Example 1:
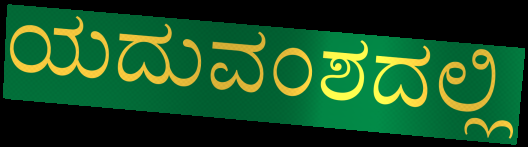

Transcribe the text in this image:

ಯದುವಂಶದಲ್ಲಿ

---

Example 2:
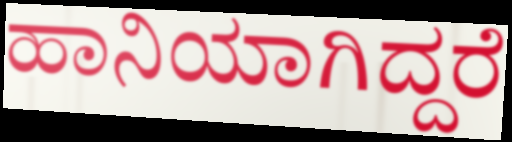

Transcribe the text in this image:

ಹಾನಿಯಾಗಿದ್ದರೆ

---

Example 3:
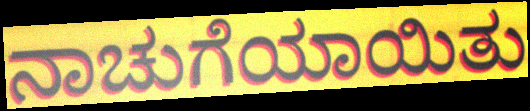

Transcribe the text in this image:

ನಾಚುಗೆಯಾಯಿತು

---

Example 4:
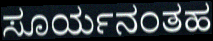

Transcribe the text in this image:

ಸೂರ್ಯನಂತಹ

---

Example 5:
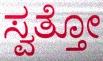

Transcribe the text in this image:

ಸ್ವತ್ತೋ